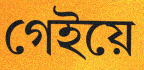
গেইয়ে